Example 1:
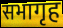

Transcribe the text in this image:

सभागृह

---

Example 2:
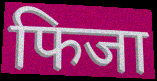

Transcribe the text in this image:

फिजा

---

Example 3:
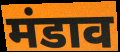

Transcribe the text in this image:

मंडाव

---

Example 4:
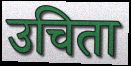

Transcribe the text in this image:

उचिता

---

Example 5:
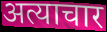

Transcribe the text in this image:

अत्याचार